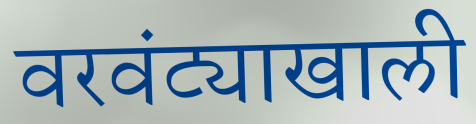
वरवंट्याखाली